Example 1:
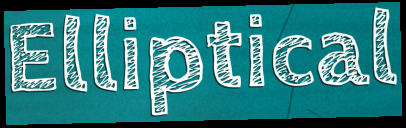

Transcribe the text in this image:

Elliptical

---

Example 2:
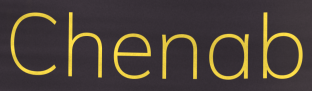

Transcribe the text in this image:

Chenab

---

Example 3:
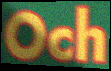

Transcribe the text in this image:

Och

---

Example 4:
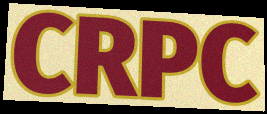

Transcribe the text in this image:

CRPC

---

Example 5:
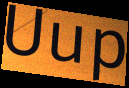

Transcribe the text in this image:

Uup